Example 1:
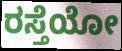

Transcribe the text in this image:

ರಸ್ತೆಯೋ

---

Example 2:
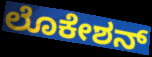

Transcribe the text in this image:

ಲೊಕೇಶನ್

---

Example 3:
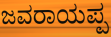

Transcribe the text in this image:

ಜವರಾಯಪ್ಪ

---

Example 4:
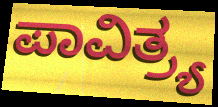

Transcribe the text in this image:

ಪಾವಿತ್ರ್ಯ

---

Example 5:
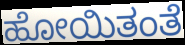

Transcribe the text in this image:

ಹೋಯಿತಂತೆ